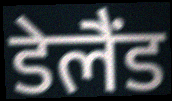
डेलैंड